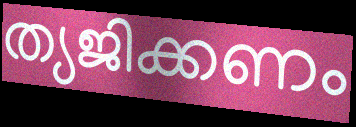
ത്യജിക്കണം